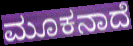
ಮೂಕನಾದೆ